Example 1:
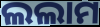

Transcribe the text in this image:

ଲଲାମ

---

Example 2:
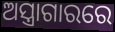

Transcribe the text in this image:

ଅସ୍ତ୍ରାଗାରରେ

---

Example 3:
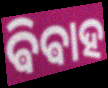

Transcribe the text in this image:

ଵିଵାହ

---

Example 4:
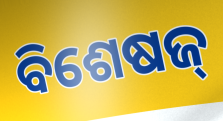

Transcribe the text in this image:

ବିଶେଷଜ୍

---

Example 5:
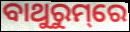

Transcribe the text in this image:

ବାଥୁରୁମ୍‌ରେ